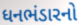
ધનભંડારનો